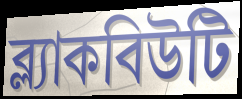
ব্ল্যাকবিউটি